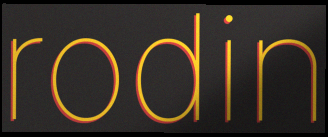
rodin